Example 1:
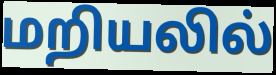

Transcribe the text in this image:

மறியலில்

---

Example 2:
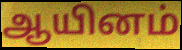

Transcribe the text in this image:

ஆயினம்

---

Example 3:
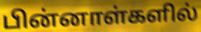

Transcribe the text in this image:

பின்னாள்களில்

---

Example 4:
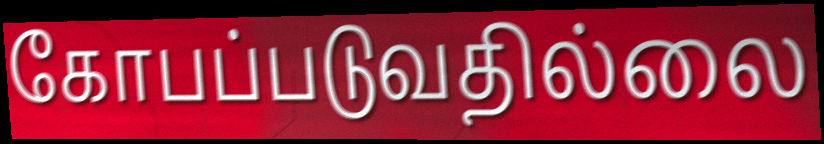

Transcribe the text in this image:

கோபப்படுவதில்லை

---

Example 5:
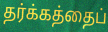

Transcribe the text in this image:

தர்க்கத்தைப்